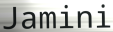
Jamini